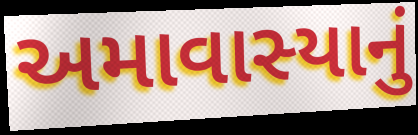
અમાવાસ્યાનું